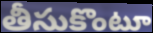
తీసుకొంటూ